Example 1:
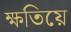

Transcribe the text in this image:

ক্ষতিয়ে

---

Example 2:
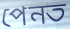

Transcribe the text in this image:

পেনত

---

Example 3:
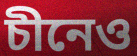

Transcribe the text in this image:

চীনেও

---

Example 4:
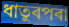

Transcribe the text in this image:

ধাতুৰপৰা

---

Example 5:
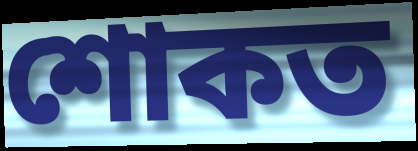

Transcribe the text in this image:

শোকত